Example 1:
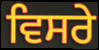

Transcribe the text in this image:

ਵਿਸਰੇ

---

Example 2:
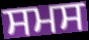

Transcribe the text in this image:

ਸਮਸ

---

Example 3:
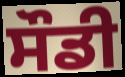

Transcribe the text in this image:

ਸੌਡੀ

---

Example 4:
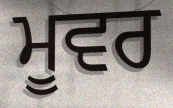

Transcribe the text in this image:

ਮੂਵਰ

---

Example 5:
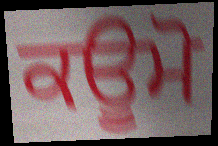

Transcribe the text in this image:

ਕਊਮੋ